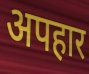
अपहार